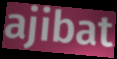
ajibat